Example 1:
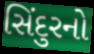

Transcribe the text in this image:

સિંદુરનો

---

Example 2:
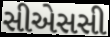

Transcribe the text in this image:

સીએસસી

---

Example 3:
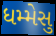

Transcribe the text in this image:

ધમ્મેસુ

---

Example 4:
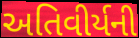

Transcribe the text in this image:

અતિવીર્યની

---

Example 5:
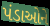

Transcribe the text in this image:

પંડાઓને